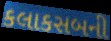
કલાકસબની